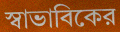
স্বাভাবিকের